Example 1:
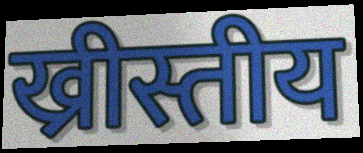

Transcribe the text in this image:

ख्रीस्तीय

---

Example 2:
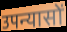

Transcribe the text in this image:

उपन्यासों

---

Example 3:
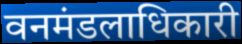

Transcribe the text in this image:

वनमंडलाधिकारी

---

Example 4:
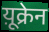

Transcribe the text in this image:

य़ूक्रेन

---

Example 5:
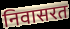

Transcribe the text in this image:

निवासरत